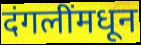
दंगलींमधून